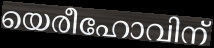
യെരീഹോവിന്